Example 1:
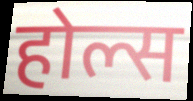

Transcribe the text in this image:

होल्स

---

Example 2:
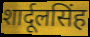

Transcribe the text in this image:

शार्दूलसिंह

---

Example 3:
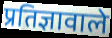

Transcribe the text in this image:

प्रतिज्ञावाले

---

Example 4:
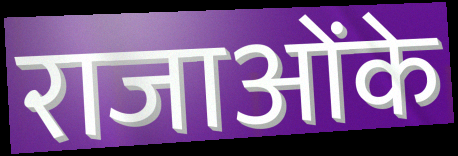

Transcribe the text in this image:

राजाओंके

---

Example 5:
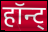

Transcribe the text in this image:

हॉन्ट्